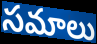
సమాలు